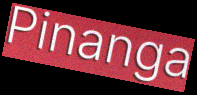
Pinanga